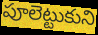
పూలెట్టుకుని